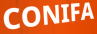
CONIFA